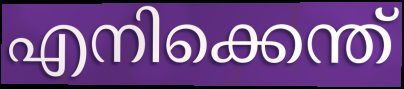
എനിക്കെന്ത്